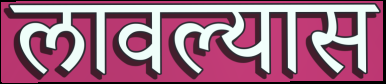
लावल्यास